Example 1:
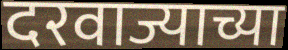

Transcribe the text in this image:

दरवाज्याच्या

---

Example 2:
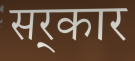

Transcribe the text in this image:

सर्कार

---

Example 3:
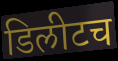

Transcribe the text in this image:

डिलीटच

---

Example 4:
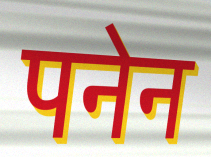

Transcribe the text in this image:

पनेन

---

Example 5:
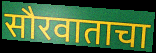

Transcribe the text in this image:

सौरवाताचा